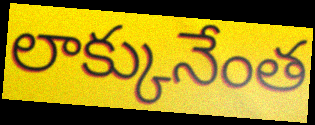
లాక్కునేంత